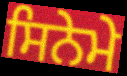
ਸਿਨੇਮੇ